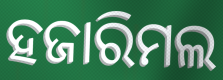
ହଜାରିମଲ